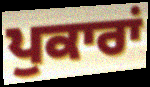
ਪੁਕਾਰਾਂ